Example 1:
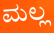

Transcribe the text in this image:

ಮಲ್ಲ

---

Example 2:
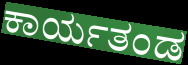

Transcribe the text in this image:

ಕಾರ್ಯತಂಡ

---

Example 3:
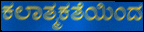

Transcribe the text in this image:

ಕಲಾತ್ಮಕತೆಯಿಂದ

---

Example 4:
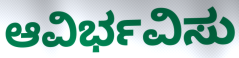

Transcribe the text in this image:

ಆವಿರ್ಭವಿಸು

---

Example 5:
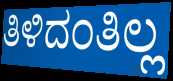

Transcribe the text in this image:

ತಿಳಿದಂತಿಲ್ಲ